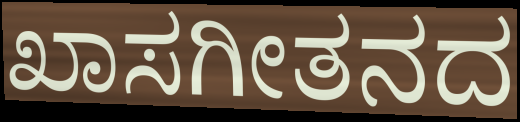
ಖಾಸಗೀತನದ